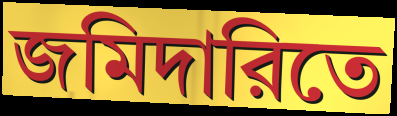
জমিদারিতে